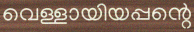
വെള്ളായിയപ്പന്റെ